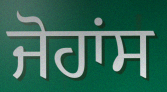
ਜੋਹਾਂਸ